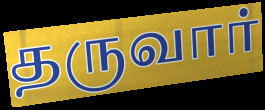
தருவார்